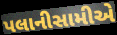
પલાનીસામીએ